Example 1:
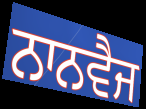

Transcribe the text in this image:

ਨਾਨਵੈਜ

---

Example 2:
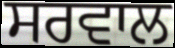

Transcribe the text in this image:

ਸਰਵਾਲ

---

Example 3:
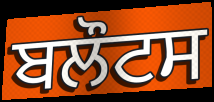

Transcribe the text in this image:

ਬਲੌਟਸ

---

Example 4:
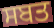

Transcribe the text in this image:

ਸਬਤ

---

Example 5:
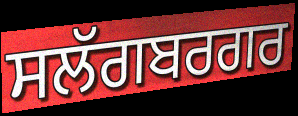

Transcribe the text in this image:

ਸਲੱਗਬਰਗਰ